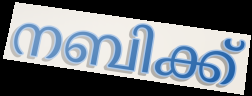
നബിക്ക്